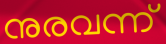
നുരവന്ന്